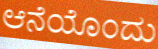
ಆನೆಯೊಂದು